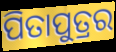
ପିତାପୁତ୍ରର